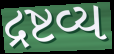
દ્રષ્ટવ્ય